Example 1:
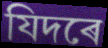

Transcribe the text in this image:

যিদৰে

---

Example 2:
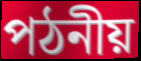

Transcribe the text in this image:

পঠনীয়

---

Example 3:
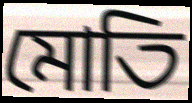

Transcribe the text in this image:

মোতি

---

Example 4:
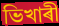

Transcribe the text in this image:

ভিখাৰী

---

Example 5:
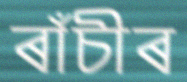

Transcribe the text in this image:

ৰাঁচীৰ